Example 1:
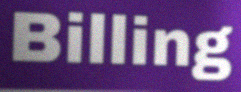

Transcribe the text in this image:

Billing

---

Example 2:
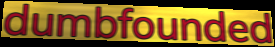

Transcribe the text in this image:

dumbfounded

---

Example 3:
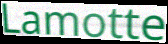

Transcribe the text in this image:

Lamotte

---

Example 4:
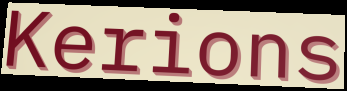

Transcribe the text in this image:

Kerions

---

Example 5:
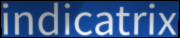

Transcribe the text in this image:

indicatrix